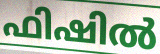
ഫിഷിൽ